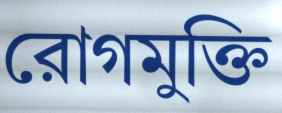
রোগমুক্তি